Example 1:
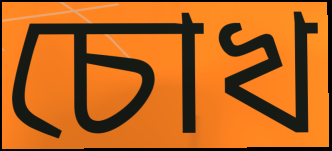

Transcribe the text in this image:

চোখ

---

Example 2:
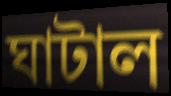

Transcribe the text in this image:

ঘাটাল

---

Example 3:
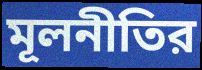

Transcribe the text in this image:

মূলনীতির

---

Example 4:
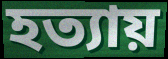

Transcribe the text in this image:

হত্যায়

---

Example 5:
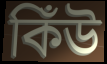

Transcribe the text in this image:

কিঁউ